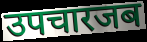
उपचारजब